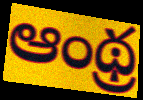
ఆంథ్ర